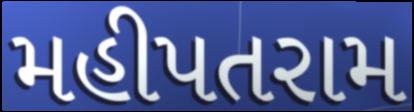
મહીપતરામ